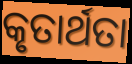
କୃତାର୍ଥତା